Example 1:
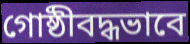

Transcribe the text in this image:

গোষ্ঠীবদ্ধভাবে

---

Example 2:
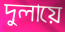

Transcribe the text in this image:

দুলায়ে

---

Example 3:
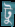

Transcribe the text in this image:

টু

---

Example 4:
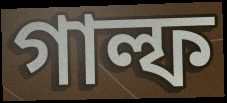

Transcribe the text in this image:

গাল্ফ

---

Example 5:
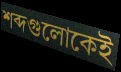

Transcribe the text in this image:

শব্দগুলোকেই